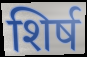
शिर्ष